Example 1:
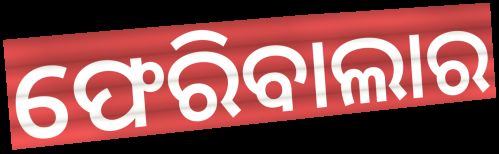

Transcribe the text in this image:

ଫେରିବାଲାର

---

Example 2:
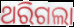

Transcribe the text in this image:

ଥରିଗଲା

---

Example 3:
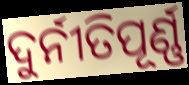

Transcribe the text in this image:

ଦୁର୍ନୀତିପୂର୍ଣ୍ଣ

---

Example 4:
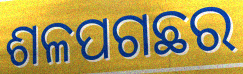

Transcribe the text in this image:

ଶଳପଗଛର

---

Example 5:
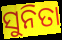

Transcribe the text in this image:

ସୁନିତା